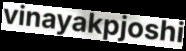
vinayakpjoshi